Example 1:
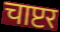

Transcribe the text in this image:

चाप्टर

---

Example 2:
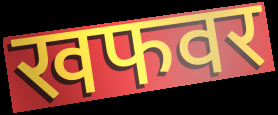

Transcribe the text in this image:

खफवर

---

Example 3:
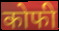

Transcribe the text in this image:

कोफी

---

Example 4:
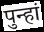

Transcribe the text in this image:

पुन्हां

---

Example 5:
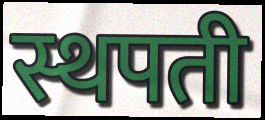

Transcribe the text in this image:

स्थपती